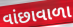
વાંછાવાળા